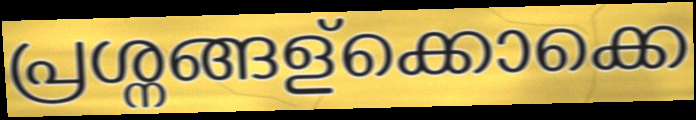
പ്രശ്നങ്ങള്ക്കൊക്കെ